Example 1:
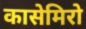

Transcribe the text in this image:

कासेमिरो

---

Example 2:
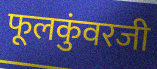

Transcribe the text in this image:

फूलकुंवरजी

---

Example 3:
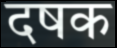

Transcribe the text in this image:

दषक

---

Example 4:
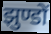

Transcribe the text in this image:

झुण्डों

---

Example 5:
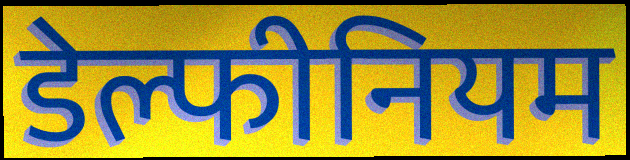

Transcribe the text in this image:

डेल्फीनियम